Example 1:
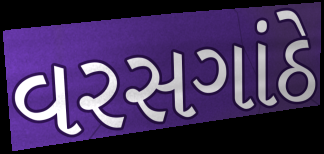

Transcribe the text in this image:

વરસગાંઠે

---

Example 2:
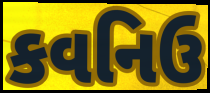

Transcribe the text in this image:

કવનિઉ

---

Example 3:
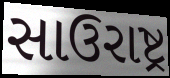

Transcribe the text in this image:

સાઉરાષ્ટ્ર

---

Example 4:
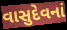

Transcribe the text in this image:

વાસુદેવનાં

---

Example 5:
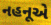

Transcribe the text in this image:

નહનૂએ